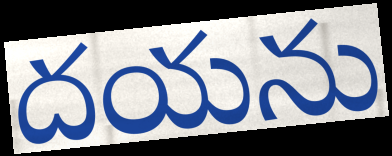
దయను